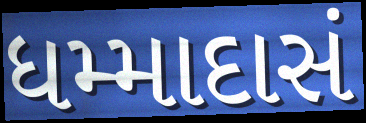
ધમ્માદાસં